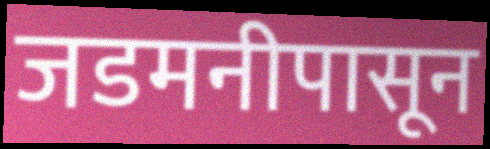
जडमनीपासून